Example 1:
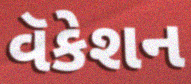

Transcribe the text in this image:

વૅકેશન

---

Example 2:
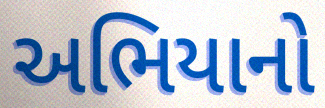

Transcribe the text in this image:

અભિયાનો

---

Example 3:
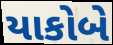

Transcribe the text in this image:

યાકોબે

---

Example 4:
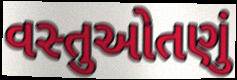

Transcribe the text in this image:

વસ્તુઓતણું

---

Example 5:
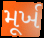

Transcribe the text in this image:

મૂર્ખ